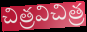
చిత్రవిచిత్ర